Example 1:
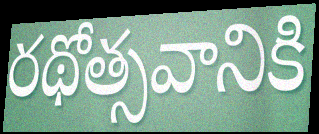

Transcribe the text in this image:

రథోత్సవానికి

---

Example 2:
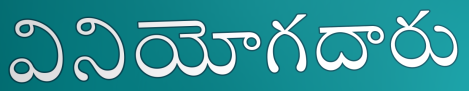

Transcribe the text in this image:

వినియోగదారు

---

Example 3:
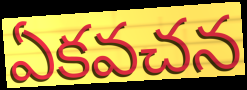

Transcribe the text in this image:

ఏకవచన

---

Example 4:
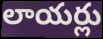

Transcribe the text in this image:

లాయర్లు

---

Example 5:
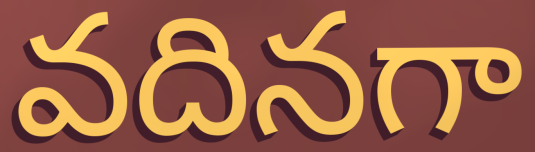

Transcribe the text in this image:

వదినగా